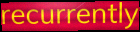
recurrently